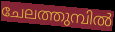
ചേലത്തുമ്പിൽ